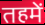
तहमें